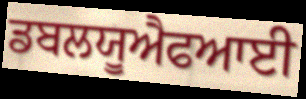
ਡਬਲਯੂਐਫਆਈ